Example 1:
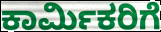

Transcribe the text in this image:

ಕಾರ್ಮಿಕರಿಗೆ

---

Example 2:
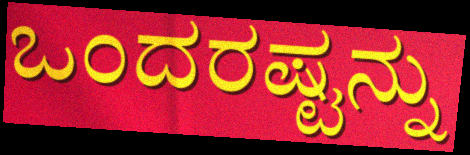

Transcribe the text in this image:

ಒಂದರಷ್ಟನ್ನು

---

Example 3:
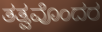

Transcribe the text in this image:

ತತ್ವವೊಂದರ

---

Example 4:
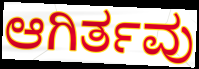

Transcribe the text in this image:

ಆಗಿರ್ತವು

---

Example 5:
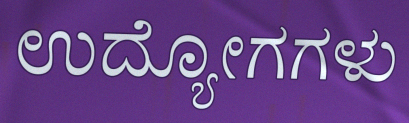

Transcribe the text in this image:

ಉದ್ಯೋಗಗಳು